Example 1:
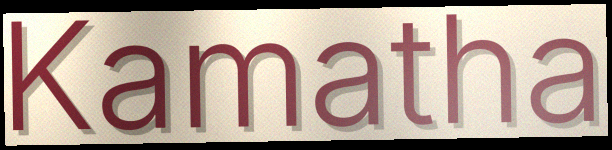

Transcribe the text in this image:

Kamatha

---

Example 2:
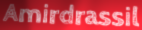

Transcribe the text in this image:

Amirdrassil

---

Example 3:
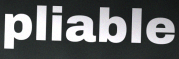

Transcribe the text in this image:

pliable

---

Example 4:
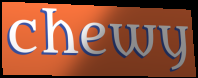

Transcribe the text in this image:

chewy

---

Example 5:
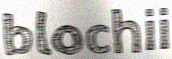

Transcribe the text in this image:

blochii